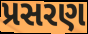
પ્રસરણ